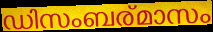
ഡിസംബര്മാസം